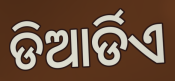
ଡିଆର୍ଡିଏ